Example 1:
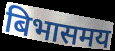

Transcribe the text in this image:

बिभासमय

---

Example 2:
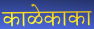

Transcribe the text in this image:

काळेकाका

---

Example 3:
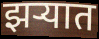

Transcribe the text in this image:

झर्‍यात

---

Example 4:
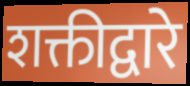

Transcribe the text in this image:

शक्तीद्वारे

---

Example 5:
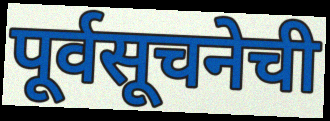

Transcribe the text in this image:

पूर्वसूचनेची